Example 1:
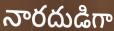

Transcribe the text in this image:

నారదుడిగా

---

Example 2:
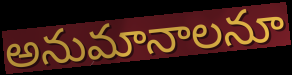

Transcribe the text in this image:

అనుమానాలనూ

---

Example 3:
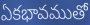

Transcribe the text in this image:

ఏకభావముతో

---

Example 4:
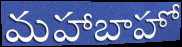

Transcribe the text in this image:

మహాబాహో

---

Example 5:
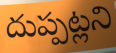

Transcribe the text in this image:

దుప్పట్లని